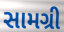
સામગ્રી